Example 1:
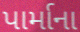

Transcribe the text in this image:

પાર્માના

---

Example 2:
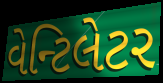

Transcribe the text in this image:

વેન્‍ટિલેટર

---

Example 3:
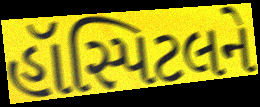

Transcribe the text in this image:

હૉસ્પિટલને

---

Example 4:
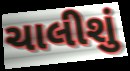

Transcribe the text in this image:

ચાલીશું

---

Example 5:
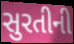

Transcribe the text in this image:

સુરતીની